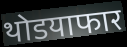
थोडयाफार